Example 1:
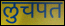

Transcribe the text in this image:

लुचपत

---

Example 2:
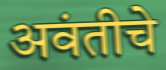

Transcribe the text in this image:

अवंतीचे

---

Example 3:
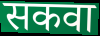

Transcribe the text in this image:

सकवा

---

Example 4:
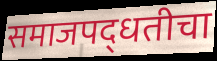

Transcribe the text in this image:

समाजपद्धतीचा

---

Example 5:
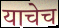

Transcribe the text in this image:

याचेच